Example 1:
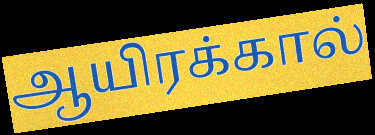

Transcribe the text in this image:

ஆயிரக்கால்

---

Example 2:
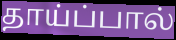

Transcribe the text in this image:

தாய்ப்பால்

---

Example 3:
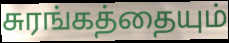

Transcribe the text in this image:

சுரங்கத்தையும்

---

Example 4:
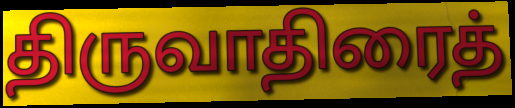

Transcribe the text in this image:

திருவாதிரைத்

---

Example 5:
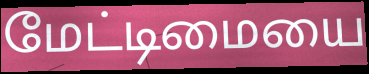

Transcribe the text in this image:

மேட்டிமையை